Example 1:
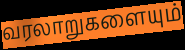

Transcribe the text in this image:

வரலாறுகளையும்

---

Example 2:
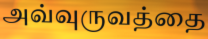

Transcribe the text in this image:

அவ்வுருவத்தை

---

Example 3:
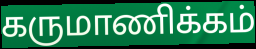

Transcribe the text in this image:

கருமாணிக்கம்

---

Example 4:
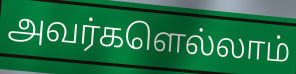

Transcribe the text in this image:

அவர்களெல்லாம்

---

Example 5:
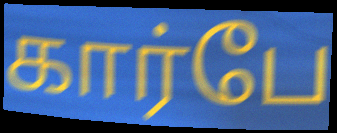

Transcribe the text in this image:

கார்பே